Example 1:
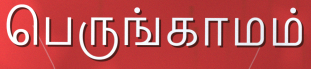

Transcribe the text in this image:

பெருங்காமம்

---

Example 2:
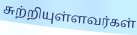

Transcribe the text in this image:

சுற்றியுள்ளவர்கள்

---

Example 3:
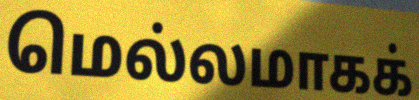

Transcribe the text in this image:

மெல்லமாகக்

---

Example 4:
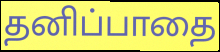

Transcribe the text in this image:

தனிப்பாதை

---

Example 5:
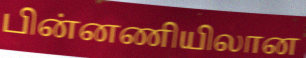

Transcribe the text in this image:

பின்னணியிலான